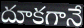
దూకగానే